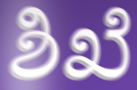
ಶಿಖೆ